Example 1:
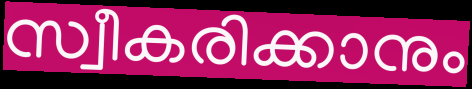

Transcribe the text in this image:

സ്വീകരിക്കാനും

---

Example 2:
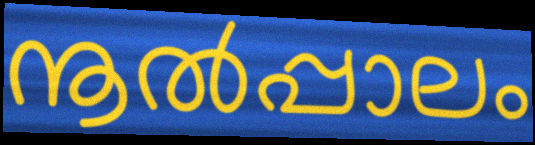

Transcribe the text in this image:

നൂൽപ്പാലം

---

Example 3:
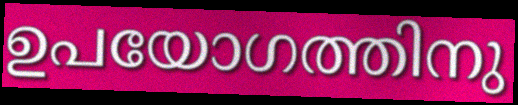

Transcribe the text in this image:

ഉപയോഗത്തിനു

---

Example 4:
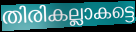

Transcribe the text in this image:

തിരികല്ലാകട്ടെ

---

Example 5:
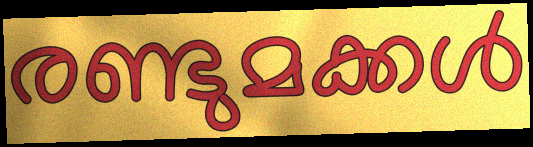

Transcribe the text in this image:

രണ്ടുമക്കൾ